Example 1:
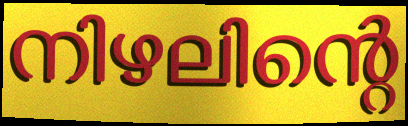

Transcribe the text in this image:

നിഴലിന്റെ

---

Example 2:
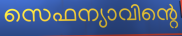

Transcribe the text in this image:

സെഫന്യാവിന്റെ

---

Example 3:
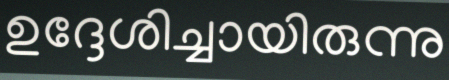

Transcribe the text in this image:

ഉദ്ദേശിച്ചായിരുന്നു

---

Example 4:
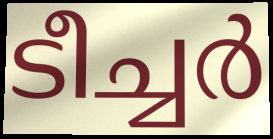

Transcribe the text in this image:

ടീച്ചർ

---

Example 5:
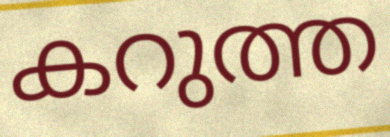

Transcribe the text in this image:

കറുത്ത